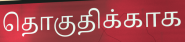
தொகுதிக்காக